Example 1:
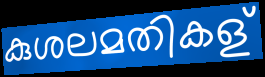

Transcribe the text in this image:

കുശലമതികള്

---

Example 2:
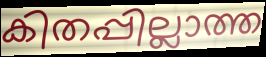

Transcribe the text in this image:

കിതപ്പില്ലാത്ത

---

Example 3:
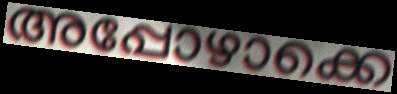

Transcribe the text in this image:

അപ്പോഴാക്കെ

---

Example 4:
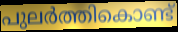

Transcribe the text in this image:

പുലർത്തികൊണ്ട്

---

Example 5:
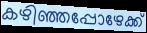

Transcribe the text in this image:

കഴിഞ്ഞപ്പോഴേക്ക്